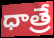
ధాత్రే